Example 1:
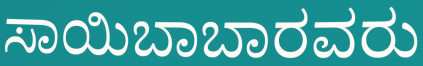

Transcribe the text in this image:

ಸಾಯಿಬಾಬಾರವರು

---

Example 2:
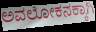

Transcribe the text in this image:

ಅವಲೋಕನಕ್ಕಾಗಿ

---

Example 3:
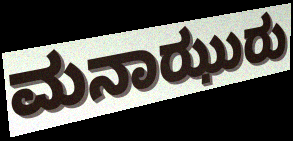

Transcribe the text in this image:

ಮನಾಝುರು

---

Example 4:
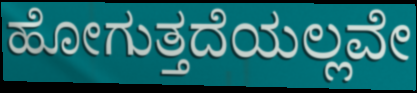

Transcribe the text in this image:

ಹೋಗುತ್ತದೆಯಲ್ಲವೇ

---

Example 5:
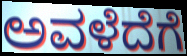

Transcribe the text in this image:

ಅವಳೆದೆಗೆ